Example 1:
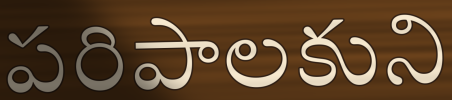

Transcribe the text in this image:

పరిపాలకుని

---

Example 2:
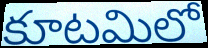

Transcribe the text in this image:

కూటమిలో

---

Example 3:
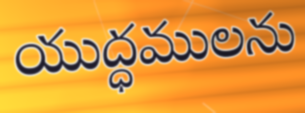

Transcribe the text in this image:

యుద్ధములను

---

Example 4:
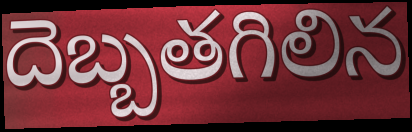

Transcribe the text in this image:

దెబ్బతగిలిన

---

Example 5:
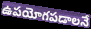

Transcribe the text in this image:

ఉపయోగపడాలనే